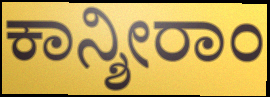
ಕಾನ್ಶೀರಾಂ